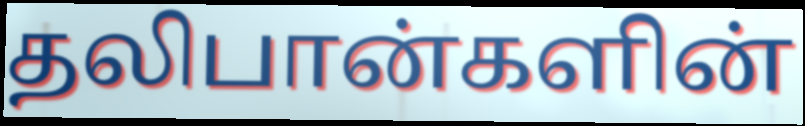
தலிபான்களின்